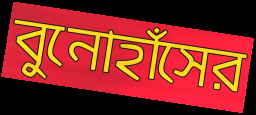
বুনোহাঁসের